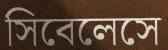
সিবেলেসে